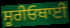
ਸੂਰੀਓਥਾਈ